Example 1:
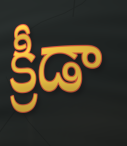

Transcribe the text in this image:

క్రీడా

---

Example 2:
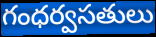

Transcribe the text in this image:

గంధర్వసతులు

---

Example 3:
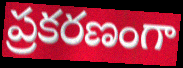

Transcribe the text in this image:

ప్రకరణంగా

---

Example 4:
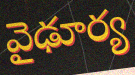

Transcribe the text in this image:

వైఢూర్య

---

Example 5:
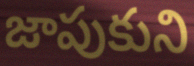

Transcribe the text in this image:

జాపుకుని